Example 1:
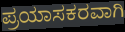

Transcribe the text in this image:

ಪ್ರಯಾಸಕರವಾಗಿ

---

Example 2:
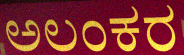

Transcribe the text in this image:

ಅಲಂಕರ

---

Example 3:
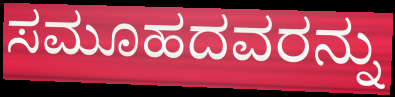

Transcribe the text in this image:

ಸಮೂಹದವರನ್ನು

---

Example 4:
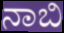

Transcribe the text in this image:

ನಾಬಿ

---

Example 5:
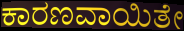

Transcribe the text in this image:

ಕಾರಣವಾಯಿತೇ